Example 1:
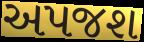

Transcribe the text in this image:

અપજશ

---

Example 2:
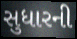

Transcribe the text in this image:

સુધારની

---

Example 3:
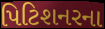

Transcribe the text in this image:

પિટિશનરના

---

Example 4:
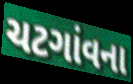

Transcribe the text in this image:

ચટગાંવના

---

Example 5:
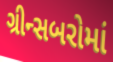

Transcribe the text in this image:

ગ્રીન્સબરોમાં